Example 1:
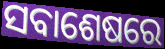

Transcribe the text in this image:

ସବାଶେଷରେ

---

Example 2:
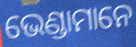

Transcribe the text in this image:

ଭେଣ୍ଡାମାନେ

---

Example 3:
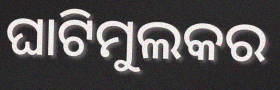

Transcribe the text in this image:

ଘାଟିମୁଲକର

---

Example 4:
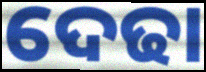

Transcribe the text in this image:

ଦେଢା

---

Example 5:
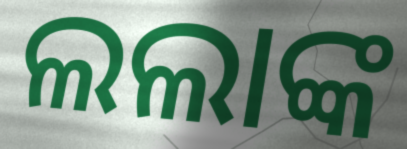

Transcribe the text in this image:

ଲଲାଙ୍କ